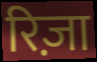
रिज़ा